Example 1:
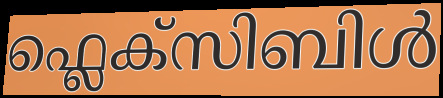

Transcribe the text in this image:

ഫ്ലെക്സിബിൾ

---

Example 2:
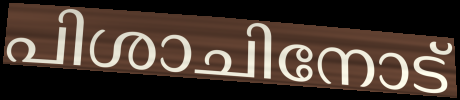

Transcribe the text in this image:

പിശാചിനോട്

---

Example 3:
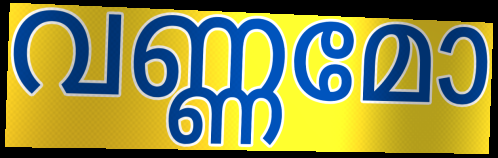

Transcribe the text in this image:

വണ്ണമോ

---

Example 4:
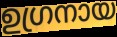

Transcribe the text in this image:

ഉഗ്രനായ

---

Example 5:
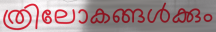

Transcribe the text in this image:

ത്രിലോകങ്ങൾക്കും